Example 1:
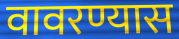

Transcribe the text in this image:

वावरण्यास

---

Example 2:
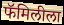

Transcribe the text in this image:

फॅमिलीला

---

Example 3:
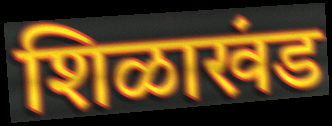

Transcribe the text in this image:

शिळाखंड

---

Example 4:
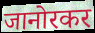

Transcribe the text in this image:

जानोरकर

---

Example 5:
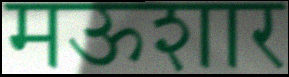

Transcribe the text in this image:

मऊशार